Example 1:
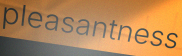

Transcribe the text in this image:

pleasantness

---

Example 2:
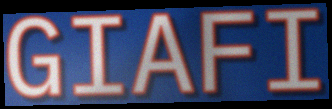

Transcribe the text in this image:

GIAFI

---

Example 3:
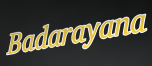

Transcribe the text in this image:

Badarayana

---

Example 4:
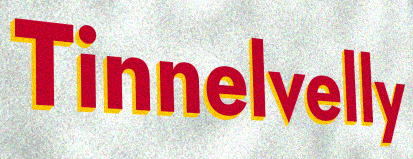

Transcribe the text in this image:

Tinnelvelly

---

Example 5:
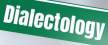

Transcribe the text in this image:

Dialectology